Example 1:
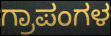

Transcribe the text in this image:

ಗ್ರಾಪಂಗಳ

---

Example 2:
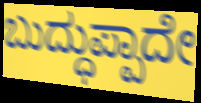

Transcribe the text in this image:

ಬುದ್ಧುಪ್ಪಾದೇ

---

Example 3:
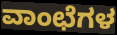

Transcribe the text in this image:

ವಾಂಛೆಗಳ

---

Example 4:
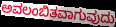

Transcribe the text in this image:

ಅವಲಂಬಿತವಾಗುವುದು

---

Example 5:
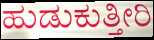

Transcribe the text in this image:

ಹುಡುಕುತ್ತೀರಿ